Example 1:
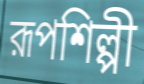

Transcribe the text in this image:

রূপশিল্পী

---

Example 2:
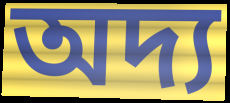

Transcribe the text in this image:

অদ্য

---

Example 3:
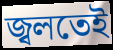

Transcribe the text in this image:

জ্বলতেই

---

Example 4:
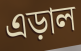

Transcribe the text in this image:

এড়াল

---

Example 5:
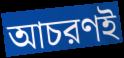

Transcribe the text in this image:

আচরণই